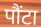
पौंटा